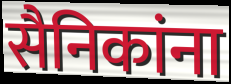
सैनिकांना